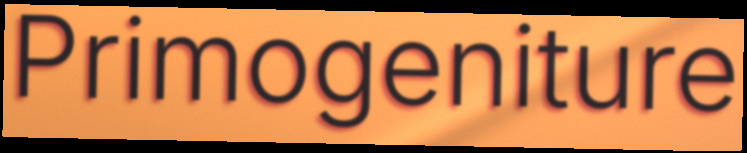
Primogeniture